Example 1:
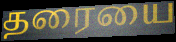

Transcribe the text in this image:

தரையை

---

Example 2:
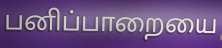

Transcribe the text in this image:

பனிப்பாறையை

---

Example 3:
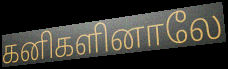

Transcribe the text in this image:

கனிகளினாலே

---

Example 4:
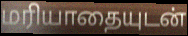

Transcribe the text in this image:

மரியாதையுடன்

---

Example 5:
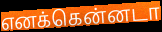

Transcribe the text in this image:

எனக்கென்னடா